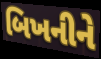
બિખનીને